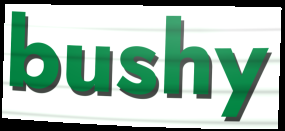
bushy